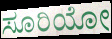
ಸೂರಿಯೋ